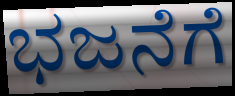
ಭಜನೆಗೆ